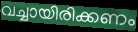
വച്ചായിരിക്കണം